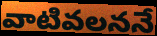
వాటివలననే